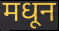
मधून